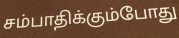
சம்பாதிக்கும்போது